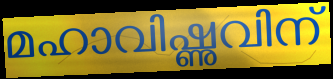
മഹാവിഷ്ണുവിന്